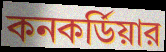
কনকর্ডিয়ার